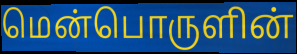
மென்பொருளின்